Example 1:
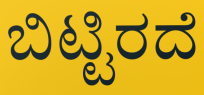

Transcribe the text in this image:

ಬಿಟ್ಟಿರದೆ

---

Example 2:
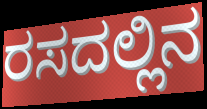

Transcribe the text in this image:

ರಸದಲ್ಲಿನ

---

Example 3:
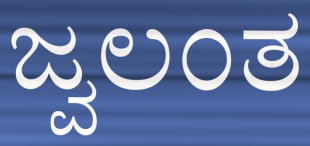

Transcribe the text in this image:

ಜ್ವಲಂತ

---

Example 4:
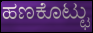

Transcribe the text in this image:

ಹಣಕೊಟ್ಟು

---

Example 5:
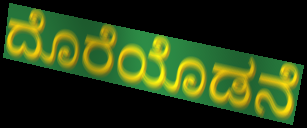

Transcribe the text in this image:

ದೊರೆಯೊಡನೆ